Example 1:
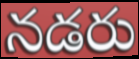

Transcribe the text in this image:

నడరు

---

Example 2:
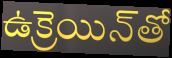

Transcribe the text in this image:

ఉక్రెయిన్‌తో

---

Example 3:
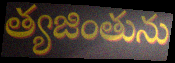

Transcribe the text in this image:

త్యజింతును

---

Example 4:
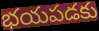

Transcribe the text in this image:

భయపడకు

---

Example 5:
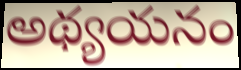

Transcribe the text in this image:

అథ్యయనం